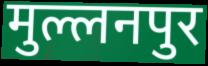
मुल्लनपुर